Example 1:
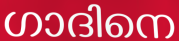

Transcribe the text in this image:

ഗാദിനെ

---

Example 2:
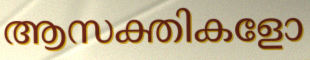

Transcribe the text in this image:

ആസക്തികളോ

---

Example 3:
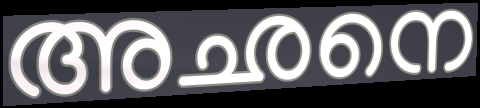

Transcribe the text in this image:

അഛനെ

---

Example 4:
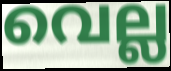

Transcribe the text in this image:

വെല്ല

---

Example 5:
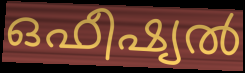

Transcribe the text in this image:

ഒഫീഷ്യൽ